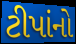
ટીપાંનો